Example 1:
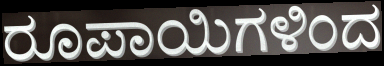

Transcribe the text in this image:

ರೂಪಾಯಿಗಳಿಂದ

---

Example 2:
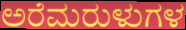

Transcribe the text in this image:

ಅರೆಮರುಳುಗಳ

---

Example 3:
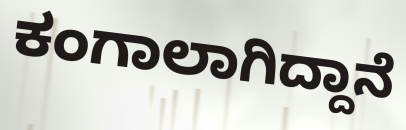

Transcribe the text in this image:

ಕಂಗಾಲಾಗಿದ್ದಾನೆ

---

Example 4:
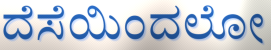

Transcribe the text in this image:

ದೆಸೆಯಿಂದಲೋ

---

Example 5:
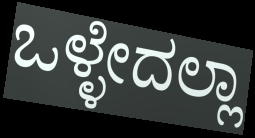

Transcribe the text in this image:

ಒಳ್ಳೇದಲ್ಲಾ